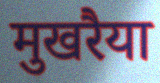
मुखरैया